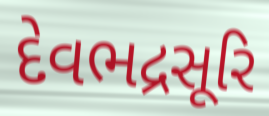
દેવભદ્રસૂરિ